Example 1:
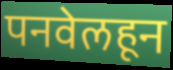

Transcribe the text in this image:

पनवेलहून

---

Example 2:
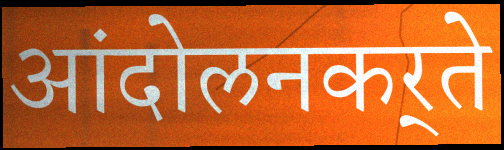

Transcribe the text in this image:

आंदोलनकर्ते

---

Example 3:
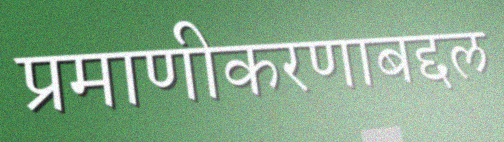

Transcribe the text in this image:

प्रमाणीकरणाबद्दल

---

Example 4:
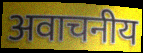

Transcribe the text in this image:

अवाचनीय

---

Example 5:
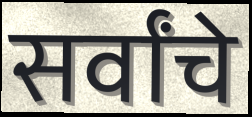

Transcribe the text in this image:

सर्वांचे